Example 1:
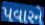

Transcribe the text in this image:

પવારને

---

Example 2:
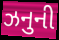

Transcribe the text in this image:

ઝનુની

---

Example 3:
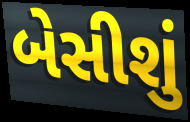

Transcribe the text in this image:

બેસીશું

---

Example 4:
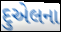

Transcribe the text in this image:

દુએલના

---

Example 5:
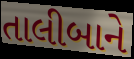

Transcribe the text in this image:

તાલીબાને